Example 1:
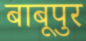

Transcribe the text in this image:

बाबूपुर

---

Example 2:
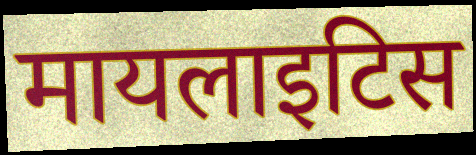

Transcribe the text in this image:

मायलाइटिस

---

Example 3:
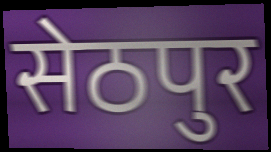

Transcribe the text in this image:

सेठपुर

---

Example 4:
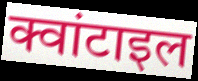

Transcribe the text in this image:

क्वांटाइल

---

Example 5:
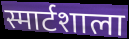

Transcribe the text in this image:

स्मार्टशाला